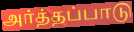
அர்த்தப்பாடு